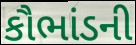
કૌભાંડની